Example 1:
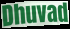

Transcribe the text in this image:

Dhuvad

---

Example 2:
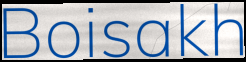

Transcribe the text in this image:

Boisakh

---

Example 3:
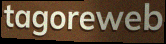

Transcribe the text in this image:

tagoreweb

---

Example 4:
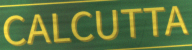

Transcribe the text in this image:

CALCUTTA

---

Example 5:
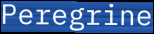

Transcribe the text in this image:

Peregrine